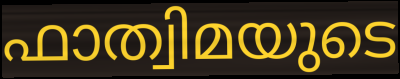
ഫാത്വിമയുടെ